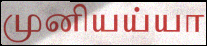
முனியய்யா